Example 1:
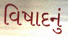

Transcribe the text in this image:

વિષાદનું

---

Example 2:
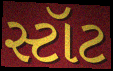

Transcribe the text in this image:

સ્ટૉટ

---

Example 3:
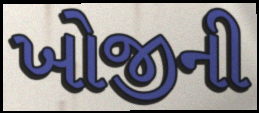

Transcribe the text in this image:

ખોજીની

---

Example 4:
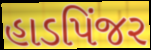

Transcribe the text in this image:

હાડપિંજર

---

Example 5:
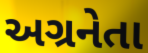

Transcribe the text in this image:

અગ્રનેતા